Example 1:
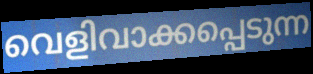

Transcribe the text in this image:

വെളിവാക്കപ്പെടുന്ന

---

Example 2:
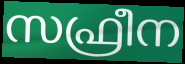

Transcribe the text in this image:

സഫ്രീന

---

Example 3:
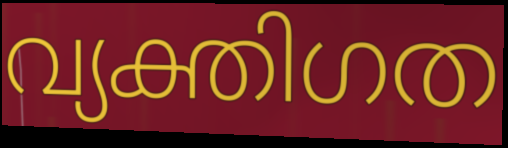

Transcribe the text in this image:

വ്യക്തിഗത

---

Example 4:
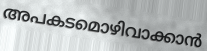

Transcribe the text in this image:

അപകടമൊഴിവാക്കാൻ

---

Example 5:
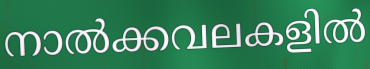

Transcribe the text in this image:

നാൽക്കവലകളിൽ